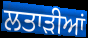
ਲਤਾੜੀਆਂ